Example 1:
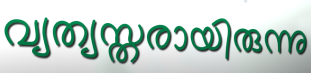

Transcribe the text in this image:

വ്യത്യസ്തരായിരുന്നു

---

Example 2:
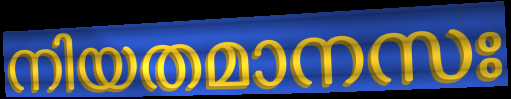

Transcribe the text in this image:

നിയതമാനസഃ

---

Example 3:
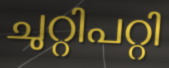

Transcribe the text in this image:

ചുറ്റിപറ്റി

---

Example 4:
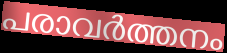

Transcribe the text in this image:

പരാവർത്തനം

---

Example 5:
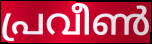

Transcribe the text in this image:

പ്രവീൺ